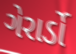
ગેરાર્ડો